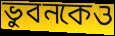
ভুবনকেও